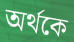
অৰ্থকে